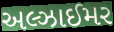
અલ્ઝાઈમર